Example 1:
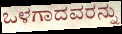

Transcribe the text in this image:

ಒಳಗಾದವರನ್ನು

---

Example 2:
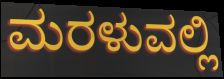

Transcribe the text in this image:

ಮರಳುವಲ್ಲಿ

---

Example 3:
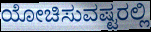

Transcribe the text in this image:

ಯೋಚಿಸುವಷ್ಟರಲ್ಲಿ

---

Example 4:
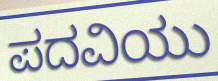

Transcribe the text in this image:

ಪದವಿಯು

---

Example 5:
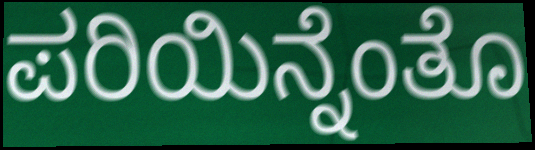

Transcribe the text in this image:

ಪರಿಯಿನ್ನೆಂತೊ